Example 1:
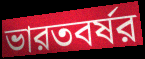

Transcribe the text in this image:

ভারতবর্ষর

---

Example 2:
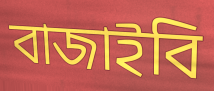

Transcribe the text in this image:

বাজাইবি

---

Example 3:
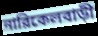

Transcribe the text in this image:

নারিকেলবাড়ী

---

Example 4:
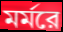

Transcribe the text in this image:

মর্মরে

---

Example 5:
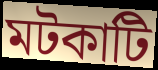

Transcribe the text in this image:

মটকাটি